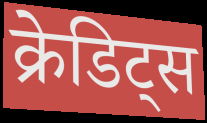
क्रेडिट्स